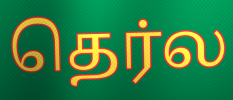
தெர்ல